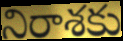
నిరాశకు